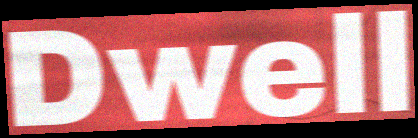
Dwell